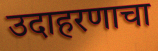
उदाहरणाचा